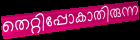
തെറ്റിപ്പോകാതിരുന്ന